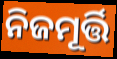
ନିଜମୂର୍ତ୍ତି